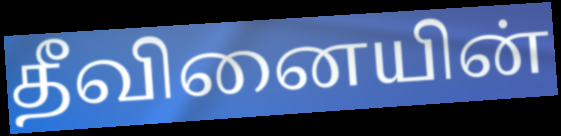
தீவினையின்